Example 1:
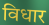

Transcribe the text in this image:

विधार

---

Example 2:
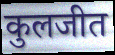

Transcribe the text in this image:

कुलजीत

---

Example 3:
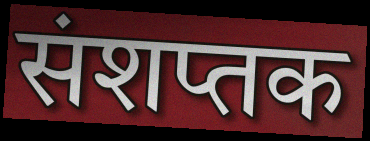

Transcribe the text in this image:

संशप्तक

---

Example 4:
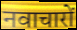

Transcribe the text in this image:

नवाचारों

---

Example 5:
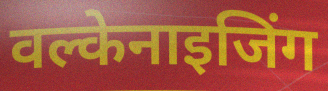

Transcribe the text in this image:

वल्केनाइजिंग